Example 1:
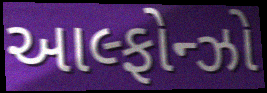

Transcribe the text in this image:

આલ્ફોન્ઝો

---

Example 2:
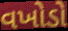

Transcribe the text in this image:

વખોડો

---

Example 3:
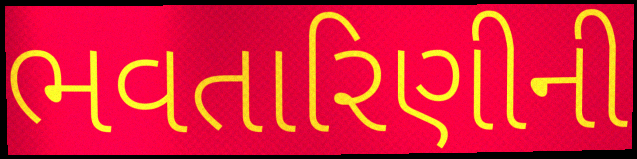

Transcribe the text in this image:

ભવતારિણીની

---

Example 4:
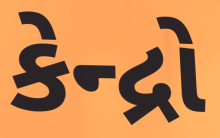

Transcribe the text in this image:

કેન્દ્રો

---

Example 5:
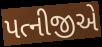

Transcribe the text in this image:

પત્નીજીએ